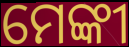
ମେଙ୍କୀ